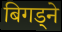
बिगड्ने